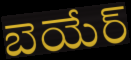
బెయేర్